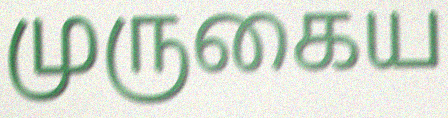
முருகைய